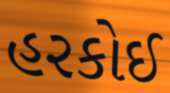
હરકોઈ